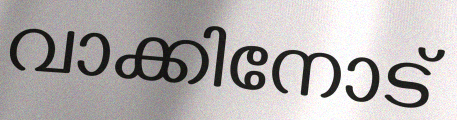
വാക്കിനോട്